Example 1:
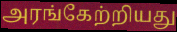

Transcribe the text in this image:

அரங்கேற்றியது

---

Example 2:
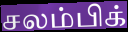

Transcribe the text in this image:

சலம்பிக்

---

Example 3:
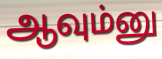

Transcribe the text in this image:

ஆவும்னு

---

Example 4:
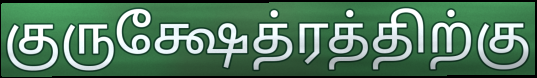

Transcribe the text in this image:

குருக்ஷேத்ரத்திற்கு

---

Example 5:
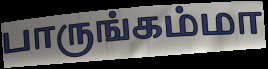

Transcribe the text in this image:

பாருங்கம்மா